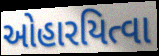
ઓહારયિત્વા